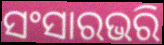
ସଂସାରଭରି